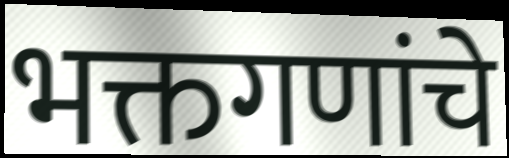
भक्तगणांचे